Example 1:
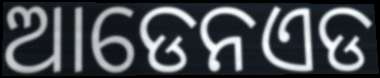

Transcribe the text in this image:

ଆଡେନଏଡ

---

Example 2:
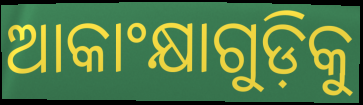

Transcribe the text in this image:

ଆକାଂକ୍ଷାଗୁଡ଼ିକୁ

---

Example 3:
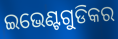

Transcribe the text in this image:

ଇଭେଣ୍ଟଗୁଡିକର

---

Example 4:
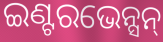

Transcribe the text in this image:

ଇଣ୍ଟରଭେନ୍ସନ୍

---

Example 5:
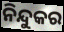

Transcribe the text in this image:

ନିନ୍ଦୁକର